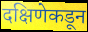
दक्षिणेकडून